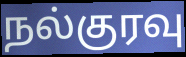
நல்குரவு